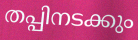
തപ്പിനടക്കും